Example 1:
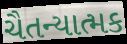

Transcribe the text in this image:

ચૈતન્યાત્મક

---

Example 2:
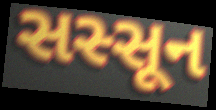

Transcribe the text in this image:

સસ્સૂન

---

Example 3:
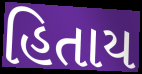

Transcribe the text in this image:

હિતાય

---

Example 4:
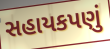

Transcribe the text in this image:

સહાયકપણું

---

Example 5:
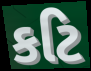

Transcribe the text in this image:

કટિ